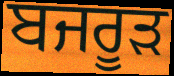
ਬਜਰੂੜ